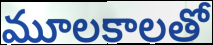
మూలకాలతో